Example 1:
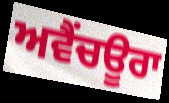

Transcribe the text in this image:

ਅਵੈਂਚਊਰਾ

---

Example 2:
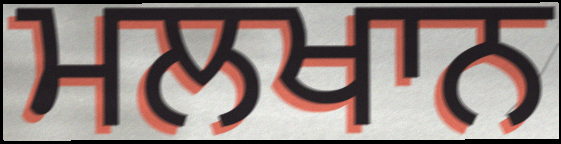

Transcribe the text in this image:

ਮਲਖਾਨ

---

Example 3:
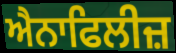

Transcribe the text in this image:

ਐਨਾਫਿਲੀਜ਼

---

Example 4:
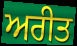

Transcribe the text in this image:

ਅਰੀਤ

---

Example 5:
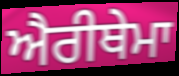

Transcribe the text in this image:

ਐਰੀਥੇਮਾ